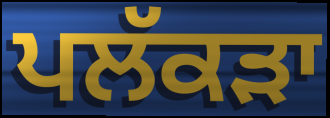
ਪਲੱਕੜਾ